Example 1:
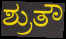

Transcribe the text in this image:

ಶ್ರುತೌ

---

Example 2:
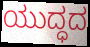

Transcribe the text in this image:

ಯುದ್ಧದ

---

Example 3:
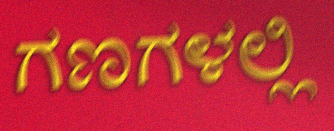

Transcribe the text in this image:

ಗಣಗಳಲ್ಲಿ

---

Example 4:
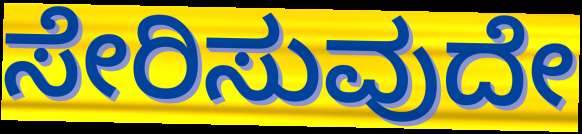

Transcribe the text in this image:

ಸೇರಿಸುವುದೇ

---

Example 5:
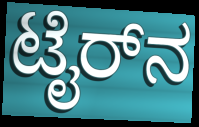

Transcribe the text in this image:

ಟೈರ್‌ನ